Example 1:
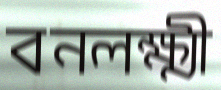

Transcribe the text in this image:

বনলক্ষ্মী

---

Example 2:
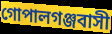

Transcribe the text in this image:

গোপালগঞ্জবাসী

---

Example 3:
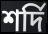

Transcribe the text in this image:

শর্দি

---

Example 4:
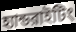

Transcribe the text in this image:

হ্যান্ডরাইটিং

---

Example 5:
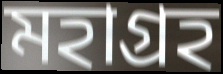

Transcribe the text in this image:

মহাগ্রহ